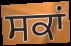
ਸਕਾਂ